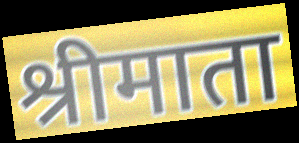
श्रीमाता